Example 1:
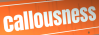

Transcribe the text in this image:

callousness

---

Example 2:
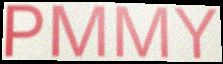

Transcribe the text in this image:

PMMY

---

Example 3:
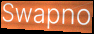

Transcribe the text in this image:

Swapno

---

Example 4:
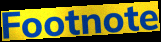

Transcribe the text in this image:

Footnote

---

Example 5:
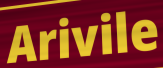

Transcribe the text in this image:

Arivile